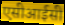
एसीआईसी